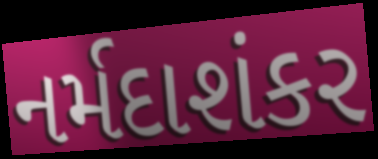
નર્મદાશંકર